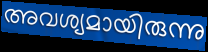
അവശ്യമായിരുന്നു